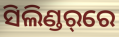
ସିଲିଣ୍ଡର୍‌ରେ